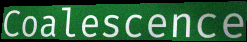
Coalescence